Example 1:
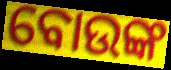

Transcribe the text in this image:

ବୋଉଙ୍କ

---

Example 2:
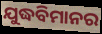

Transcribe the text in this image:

ଯୁଦ୍ଧବିମାନର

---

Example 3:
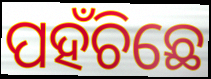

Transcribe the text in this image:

ପହଁଚିଛେ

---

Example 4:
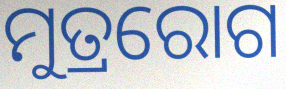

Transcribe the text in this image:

ମୁତ୍ରରୋଗ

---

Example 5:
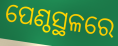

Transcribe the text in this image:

ପେଣ୍ଠସ୍ଥଳରେ